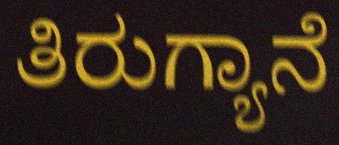
ತಿರುಗ್ಯಾನೆ